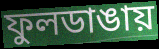
ফুলডাঙায়